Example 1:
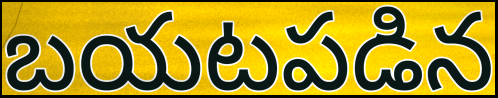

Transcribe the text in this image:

బయటపడిన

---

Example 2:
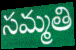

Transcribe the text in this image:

సమ్మతి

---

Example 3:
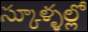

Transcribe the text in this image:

స్కూళ్ళల్లో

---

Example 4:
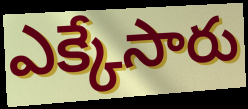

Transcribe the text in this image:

ఎక్కేసారు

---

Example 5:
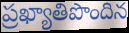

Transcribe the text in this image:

ప్రఖ్యాతిపొందిన